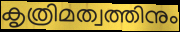
കൃത്രിമത്വത്തിനും